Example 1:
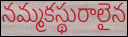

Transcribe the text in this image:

నమ్మకస్థురాలైన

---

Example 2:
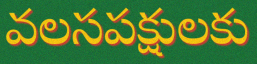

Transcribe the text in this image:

వలసపక్షులకు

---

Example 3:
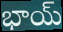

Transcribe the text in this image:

భాయ్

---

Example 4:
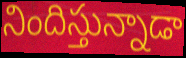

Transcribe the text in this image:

నిందిస్తున్నాడా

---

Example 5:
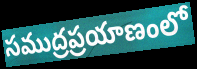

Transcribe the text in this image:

సముద్రప్రయాణంలో